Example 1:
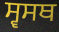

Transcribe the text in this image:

ਸ੍ਵਸਥ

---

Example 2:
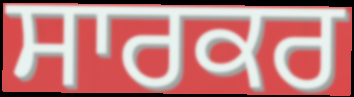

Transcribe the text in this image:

ਸਾਰਕਰ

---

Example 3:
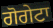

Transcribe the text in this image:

ਗੋਗੇਟਾ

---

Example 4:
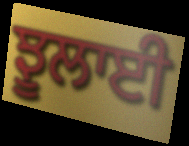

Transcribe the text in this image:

ਝੂਲਾਈ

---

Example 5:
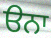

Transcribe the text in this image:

ੳਨਾ